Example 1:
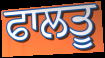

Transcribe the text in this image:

ਫਾਲਤੂ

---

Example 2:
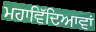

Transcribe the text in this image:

ਮਹਾਵਿੱਦਿਆਵਾਂ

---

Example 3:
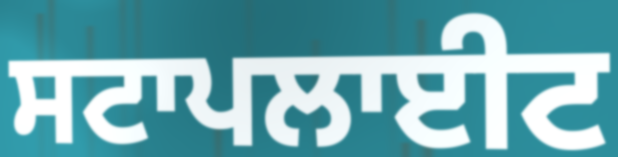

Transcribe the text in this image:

ਸਟਾਪਲਾਈਟ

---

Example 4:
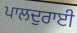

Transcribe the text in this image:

ਪਾਲਦੁਰਾਈ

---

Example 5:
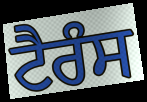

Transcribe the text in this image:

ਟੈਰੰਸ